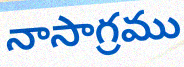
నాసాగ్రము